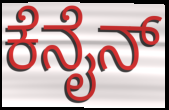
ಕೆನೈನ್